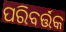
ପରିବର୍ତ୍ତକ